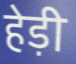
हेड़ी